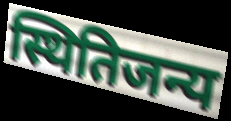
स्थितिजन्य